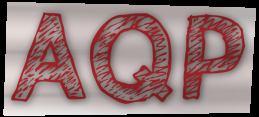
AQP